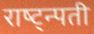
राष्ट्न्पती